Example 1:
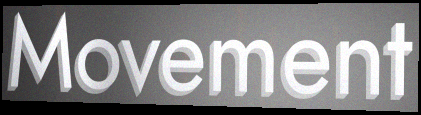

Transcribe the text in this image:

Movement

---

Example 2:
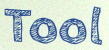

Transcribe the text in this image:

Tool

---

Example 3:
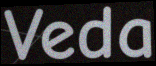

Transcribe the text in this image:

Veda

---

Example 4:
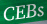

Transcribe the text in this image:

CEBs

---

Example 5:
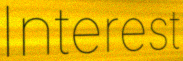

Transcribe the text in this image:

Interest